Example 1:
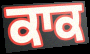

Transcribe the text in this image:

ਕਾਕ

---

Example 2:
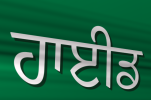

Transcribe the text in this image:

ਹਾਈਡ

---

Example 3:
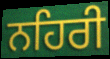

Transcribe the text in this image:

ਨਹਿਰੀ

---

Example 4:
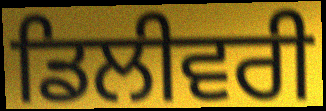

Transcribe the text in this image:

ਡਿਲੀਵਰੀ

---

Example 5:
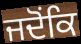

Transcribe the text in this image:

ਜਦੋਂਕਿ